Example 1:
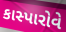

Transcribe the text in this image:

કાસ્પારોવે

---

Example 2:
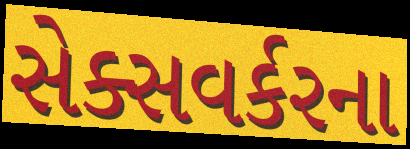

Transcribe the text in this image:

સેક્સવર્કરના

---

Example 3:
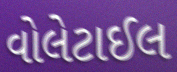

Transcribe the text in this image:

વોલેટાઈલ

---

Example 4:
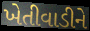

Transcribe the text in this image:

ખેતીવાડીને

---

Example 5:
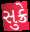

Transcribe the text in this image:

સુક્રે